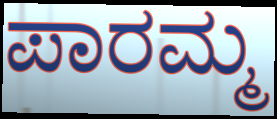
ಪಾರಮ್ಮ